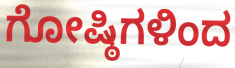
ಗೋಷ್ಠಿಗಳಿಂದ